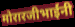
मोरारजीभाईंनी